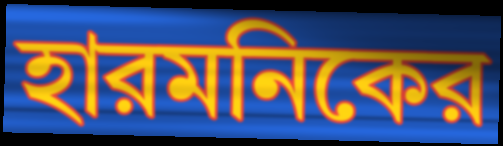
হারমনিকের